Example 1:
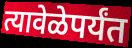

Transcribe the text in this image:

त्यावेळेपर्यंत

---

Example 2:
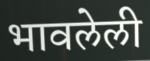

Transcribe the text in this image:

भावलेली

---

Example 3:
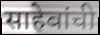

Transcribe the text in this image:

साहेबांची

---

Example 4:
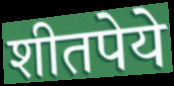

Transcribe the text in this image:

शीतपेये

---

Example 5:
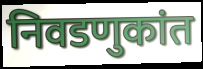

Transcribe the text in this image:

निवडणुकांत